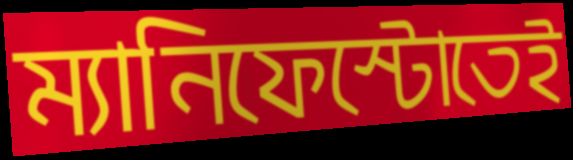
ম্যানিফেস্টোতেই